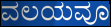
ವಲಯವೂ